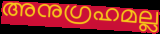
അനുഗ്രഹമല്ല